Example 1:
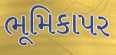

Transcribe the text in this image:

ભૂમિકાપર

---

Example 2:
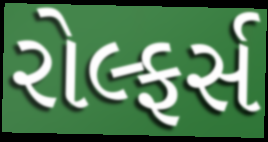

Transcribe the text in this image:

રોલ્ફર્સ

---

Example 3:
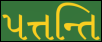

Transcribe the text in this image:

પત્તન્તિ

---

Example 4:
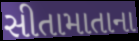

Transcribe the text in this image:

સીતામાતાના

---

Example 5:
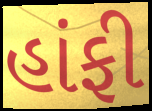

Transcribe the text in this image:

હાંફી